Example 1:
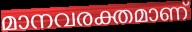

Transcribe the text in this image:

മാനവരക്തമാണ്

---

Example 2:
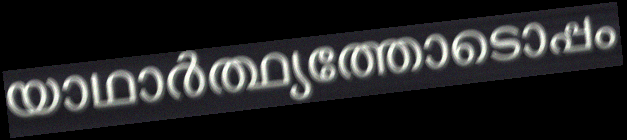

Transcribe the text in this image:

യാഥാർത്ഥ്യത്തോടൊപ്പം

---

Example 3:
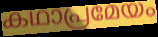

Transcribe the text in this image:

കഥാപ്രമേയം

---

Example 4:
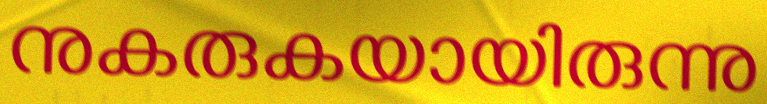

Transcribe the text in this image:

നുകരുകയായിരുന്നു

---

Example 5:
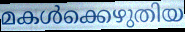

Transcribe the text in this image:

മകൾക്കെഴുതിയ